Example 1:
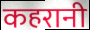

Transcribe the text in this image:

कहरानी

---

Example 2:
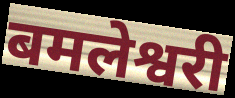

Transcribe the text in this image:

बमलेश्वरी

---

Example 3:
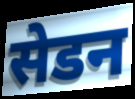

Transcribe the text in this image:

सेडन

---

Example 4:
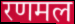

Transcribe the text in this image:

रणमल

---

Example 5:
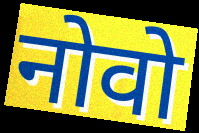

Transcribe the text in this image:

नोवो